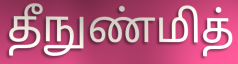
தீநுண்மித்